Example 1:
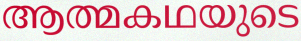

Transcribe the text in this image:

ആത്മകഥയുടെ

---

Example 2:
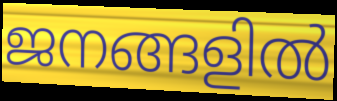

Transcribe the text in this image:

ജനങ്ങളിൽ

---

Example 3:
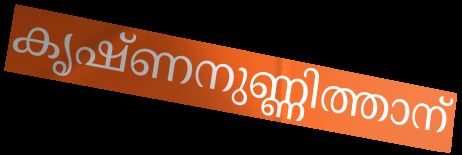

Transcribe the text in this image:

കൃഷ്ണനുണ്ണിത്താന്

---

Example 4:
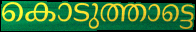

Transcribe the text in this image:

കൊടുത്താട്ടെ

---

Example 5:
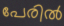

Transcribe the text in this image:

പേരിൽ